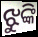
ଝୁଙ୍କି